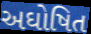
અઘોષિત